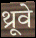
थ्रूवे